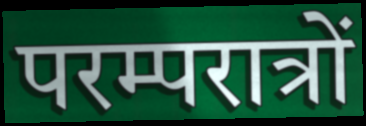
परम्परात्रों